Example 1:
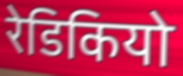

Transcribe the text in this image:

रेडिकियो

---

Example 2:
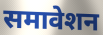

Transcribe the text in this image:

समावेशन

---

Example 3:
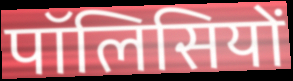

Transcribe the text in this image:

पॉलिसियों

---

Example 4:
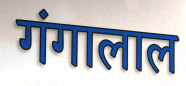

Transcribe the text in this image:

गंगालाल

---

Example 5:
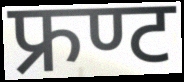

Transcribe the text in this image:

फ्रण्ट